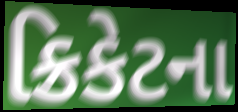
ક્રિકેટના